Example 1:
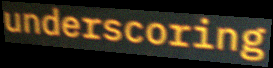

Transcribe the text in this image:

underscoring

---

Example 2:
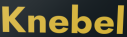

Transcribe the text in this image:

Knebel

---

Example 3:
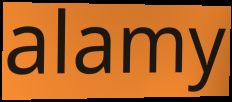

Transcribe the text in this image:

alamy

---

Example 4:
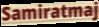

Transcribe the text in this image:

Samiratmaj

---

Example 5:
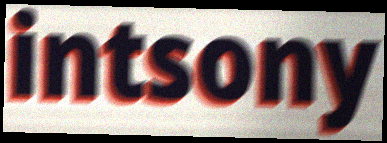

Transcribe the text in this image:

intsony